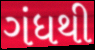
ગંધથી